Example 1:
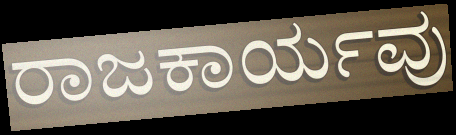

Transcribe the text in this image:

ರಾಜಕಾರ್ಯವು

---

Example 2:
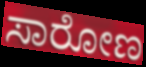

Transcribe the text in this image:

ಸಾರೋಣ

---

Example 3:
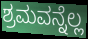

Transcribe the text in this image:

ಶ್ರಮವನ್ನೆಲ್ಲ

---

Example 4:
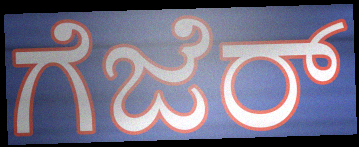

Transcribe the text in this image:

ಗೆಜೆರ್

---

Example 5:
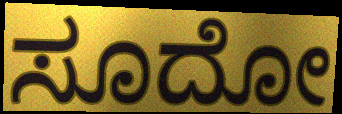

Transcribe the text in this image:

ಸೂದೋ